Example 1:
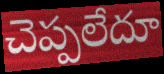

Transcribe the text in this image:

చెప్పలేదూ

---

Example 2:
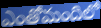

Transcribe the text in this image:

ఎంతోమందిలో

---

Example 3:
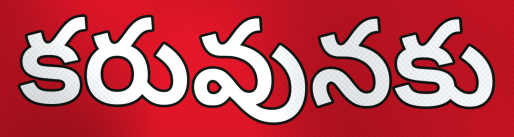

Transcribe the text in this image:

కరువునకు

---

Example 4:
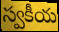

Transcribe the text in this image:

స్వకీయ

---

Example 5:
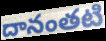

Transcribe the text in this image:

దానంతటి